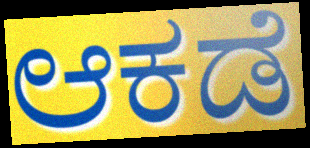
ಆಕಡೆ